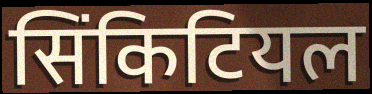
सिंकिटियल